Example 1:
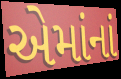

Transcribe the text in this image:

એમાંનાં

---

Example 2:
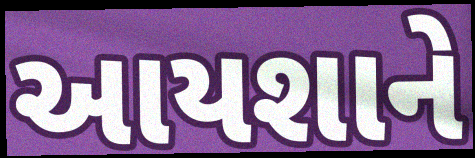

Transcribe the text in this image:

આયશાને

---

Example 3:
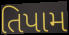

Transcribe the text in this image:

તિપામ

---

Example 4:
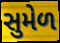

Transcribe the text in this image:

સુમેળ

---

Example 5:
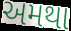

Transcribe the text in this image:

અમથા